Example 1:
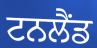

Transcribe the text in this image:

ਟਨਲੈਂਡ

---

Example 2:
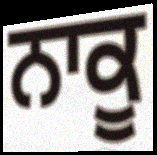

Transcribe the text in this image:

ਨਾਕੂ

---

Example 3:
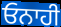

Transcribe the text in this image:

ਓਨਾਹੀ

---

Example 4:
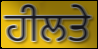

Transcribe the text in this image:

ਹੀਲਤੇ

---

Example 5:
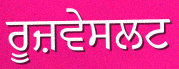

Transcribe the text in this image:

ਰੂਜ਼ਵੇਸਲਟ